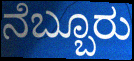
ನೆಬ್ಬೂರು